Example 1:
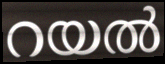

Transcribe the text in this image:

റയൽ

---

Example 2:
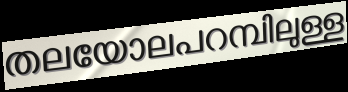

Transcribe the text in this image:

തലയോലപറമ്പിലുള്ള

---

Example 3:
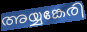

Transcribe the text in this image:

അയ്യങ്കേരി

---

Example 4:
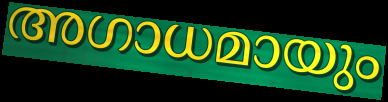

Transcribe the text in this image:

അഗാധമായും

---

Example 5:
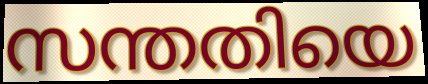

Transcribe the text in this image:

സന്തതിയെ